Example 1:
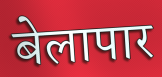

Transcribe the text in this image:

बेलापार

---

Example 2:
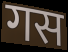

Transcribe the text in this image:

गस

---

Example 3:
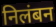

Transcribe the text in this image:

निलंबन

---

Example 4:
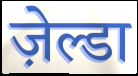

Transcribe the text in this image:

ज़ेल्डा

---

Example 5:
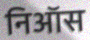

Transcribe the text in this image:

निऑस